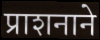
प्राशनाने